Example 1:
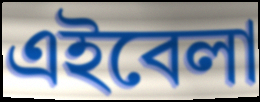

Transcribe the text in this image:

এইবেলা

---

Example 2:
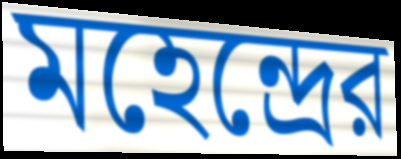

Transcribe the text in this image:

মহেন্দ্রের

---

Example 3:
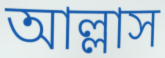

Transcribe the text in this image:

আল্লাস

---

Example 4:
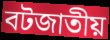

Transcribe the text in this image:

বটজাতীয়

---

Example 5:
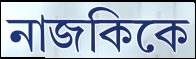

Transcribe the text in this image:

নাজকিকে